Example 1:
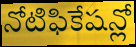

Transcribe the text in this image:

నోటిఫికేషన్లో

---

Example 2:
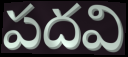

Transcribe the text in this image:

పదవి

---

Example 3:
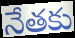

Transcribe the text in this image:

నేతకు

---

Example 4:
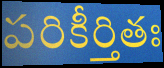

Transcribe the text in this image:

పరికీర్తితః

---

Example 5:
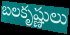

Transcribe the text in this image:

బలకృష్ణులు